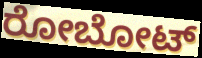
ರೋಬೋಟ್